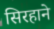
सिरहाने